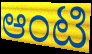
ಆಂಟಿ